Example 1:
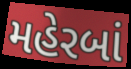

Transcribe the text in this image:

મહેરબાં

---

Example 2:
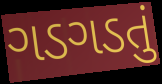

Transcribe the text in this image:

ગડગડતું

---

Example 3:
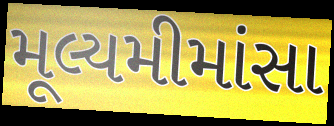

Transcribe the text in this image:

મૂલ્યમીમાંસા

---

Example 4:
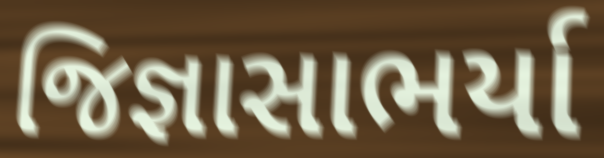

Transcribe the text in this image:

જિજ્ઞાસાભર્યા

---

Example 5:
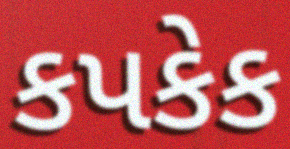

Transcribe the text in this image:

કપકેક